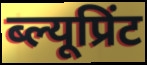
ब्ल्यूप्रिंट